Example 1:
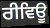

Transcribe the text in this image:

ਰੀਵਿਊ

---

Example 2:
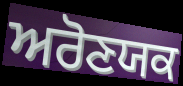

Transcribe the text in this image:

ਅਰੋਣਯਕ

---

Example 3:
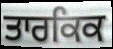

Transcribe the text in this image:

ਤਾਰਕਿਕ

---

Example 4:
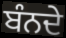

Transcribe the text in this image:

ਬੰਨਦੇ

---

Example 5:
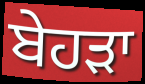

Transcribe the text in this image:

ਬੇਹੜਾ